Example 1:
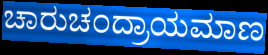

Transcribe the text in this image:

ಚಾರುಚಂದ್ರಾಯಮಾಣ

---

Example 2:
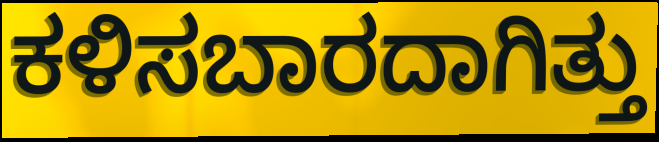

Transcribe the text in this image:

ಕಳಿಸಬಾರದಾಗಿತ್ತು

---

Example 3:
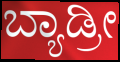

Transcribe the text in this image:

ಬ್ಯಾಡ್ರೀ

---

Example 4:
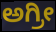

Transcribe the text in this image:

ಅಗ್ರೀ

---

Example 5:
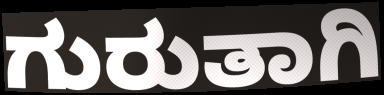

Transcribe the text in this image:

ಗುರುತಾಗಿ